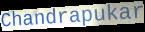
Chandrapukar